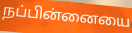
நப்பின்னையை